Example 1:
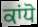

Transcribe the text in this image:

ਕਾਂਧੋ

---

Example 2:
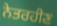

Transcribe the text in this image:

ਨੇਤਰਹੀਣ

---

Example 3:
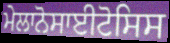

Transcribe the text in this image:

ਮੇਲਾਨੋਸਾਈਟੋਸਿਸ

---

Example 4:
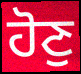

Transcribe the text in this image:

ਹੋਣੁ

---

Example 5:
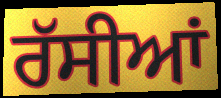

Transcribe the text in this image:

ਰੱਸੀਆਂ